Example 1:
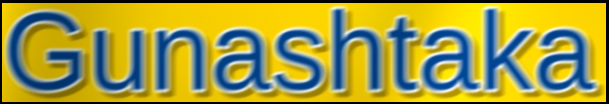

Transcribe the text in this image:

Gunashtaka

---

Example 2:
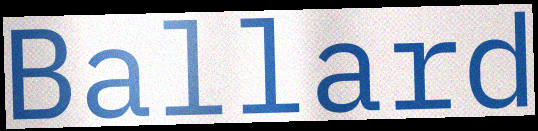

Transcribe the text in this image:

Ballard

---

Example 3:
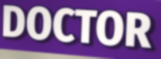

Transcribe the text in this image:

DOCTOR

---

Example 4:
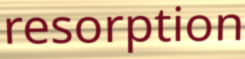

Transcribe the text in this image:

resorption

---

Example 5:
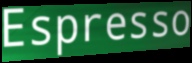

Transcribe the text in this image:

Espresso